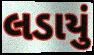
લડાયું